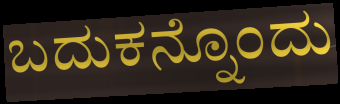
ಬದುಕನ್ನೊಂದು